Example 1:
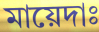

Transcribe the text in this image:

মায়েদাঃ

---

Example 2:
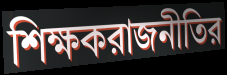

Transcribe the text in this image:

শিক্ষকরাজনীতির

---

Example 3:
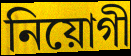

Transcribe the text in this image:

নিয়োগী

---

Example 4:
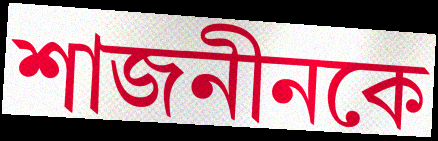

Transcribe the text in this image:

শাজনীনকে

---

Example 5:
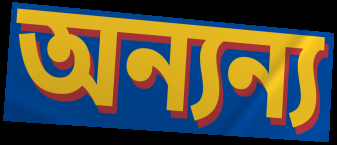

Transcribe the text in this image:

অন্যন্য